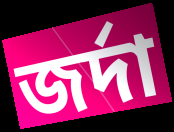
জর্দা